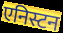
एनिस्टन